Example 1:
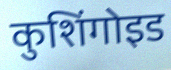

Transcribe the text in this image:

कुशिंगोइड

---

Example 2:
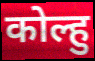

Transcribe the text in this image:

कोल्हु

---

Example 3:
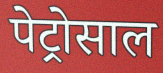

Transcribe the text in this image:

पेट्रोसाल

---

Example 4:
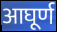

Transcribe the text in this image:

आघूर्ण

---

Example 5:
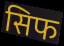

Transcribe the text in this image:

सिफ